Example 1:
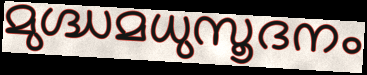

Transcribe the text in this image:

മുഗ്ദ്ധമധുസൂദനം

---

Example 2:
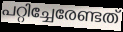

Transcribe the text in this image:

പറ്റിച്ചേരേണ്ടത്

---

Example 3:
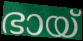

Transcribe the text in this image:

ഭായ്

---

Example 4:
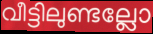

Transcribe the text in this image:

വീട്ടിലുണ്ടല്ലോ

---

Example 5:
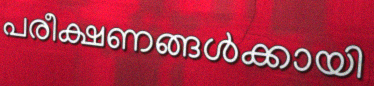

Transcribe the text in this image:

പരീക്ഷണങ്ങൾക്കായി